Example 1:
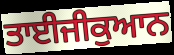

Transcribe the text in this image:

ਤਾਈਜੀਕੁਆਨ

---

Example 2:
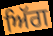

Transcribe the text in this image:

ਅਿੱਗ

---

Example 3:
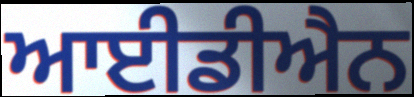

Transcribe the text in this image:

ਆਈਡੀਐਨ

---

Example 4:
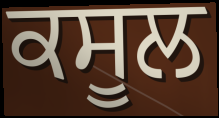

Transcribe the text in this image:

ਕਸੂਲ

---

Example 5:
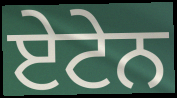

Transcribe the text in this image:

ਏਟੇਨ